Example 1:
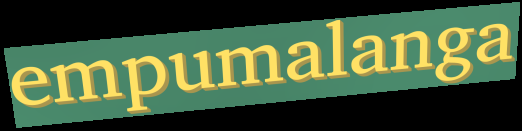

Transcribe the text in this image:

empumalanga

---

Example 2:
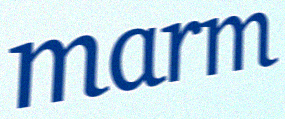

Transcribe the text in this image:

marm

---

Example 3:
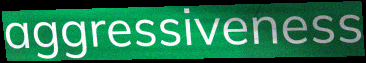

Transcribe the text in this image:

aggressiveness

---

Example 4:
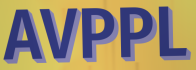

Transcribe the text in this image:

AVPPL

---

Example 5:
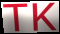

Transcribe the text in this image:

TK